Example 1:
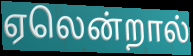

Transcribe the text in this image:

ஏலென்றால்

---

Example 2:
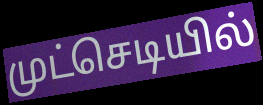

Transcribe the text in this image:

முட்செடியில்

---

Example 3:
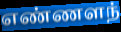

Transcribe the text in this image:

எண்ணளந்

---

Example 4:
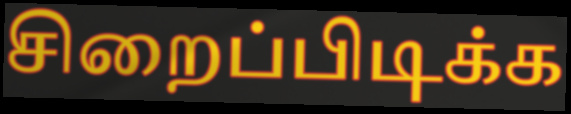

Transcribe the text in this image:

சிறைப்பிடிக்க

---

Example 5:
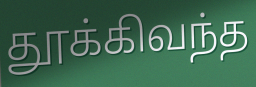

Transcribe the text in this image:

தூக்கிவந்த